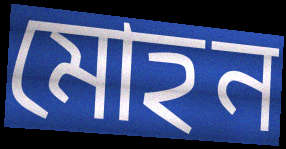
মোহন